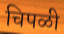
चिपळी